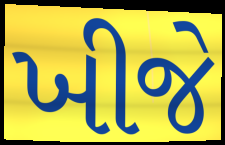
ખીજે